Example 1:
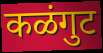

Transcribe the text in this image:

कळंगुट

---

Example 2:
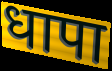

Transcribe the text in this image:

धापा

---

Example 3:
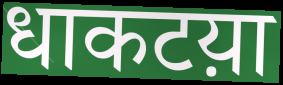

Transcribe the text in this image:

धाकटय़ा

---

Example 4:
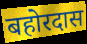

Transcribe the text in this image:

बहोरदास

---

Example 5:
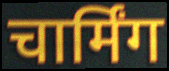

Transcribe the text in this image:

चार्मिंग